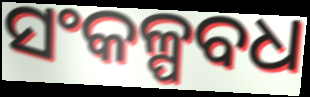
ସଂକଳ୍ପବଧ